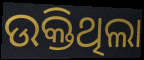
ଉକ୍ତିଥିଲା